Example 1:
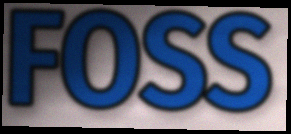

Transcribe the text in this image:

FOSS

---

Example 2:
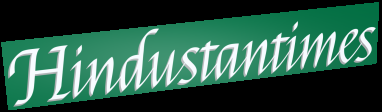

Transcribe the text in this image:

Hindustantimes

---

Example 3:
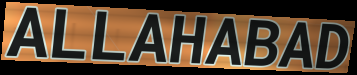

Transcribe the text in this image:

ALLAHABAD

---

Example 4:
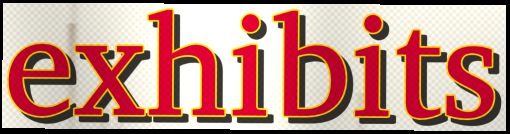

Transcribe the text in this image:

exhibits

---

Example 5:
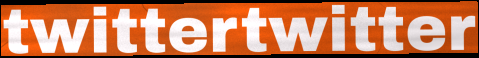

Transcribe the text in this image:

twittertwitter